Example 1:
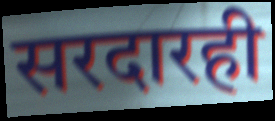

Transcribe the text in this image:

सरदारही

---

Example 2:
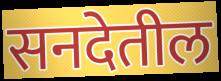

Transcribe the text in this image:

सनदेतील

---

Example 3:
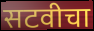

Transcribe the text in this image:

सटवीचा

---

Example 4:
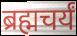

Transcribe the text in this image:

ब्रह्मचर्यं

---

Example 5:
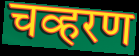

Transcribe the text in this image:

चव्हरण